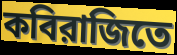
কবিরাজিতে